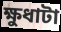
ক্ষুধাটা